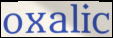
oxalic